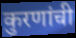
कुरणांची